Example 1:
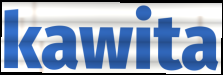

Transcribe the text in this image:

kawita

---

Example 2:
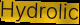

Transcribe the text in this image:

Hydrolic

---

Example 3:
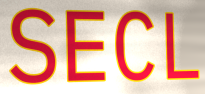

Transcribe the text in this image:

SECL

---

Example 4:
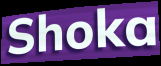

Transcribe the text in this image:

Shoka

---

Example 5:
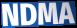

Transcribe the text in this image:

NDMA